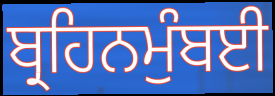
ਬ੍ਰਹਿਨਮੁੰਬਈ